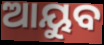
ଆୟୁବ